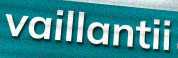
vaillantii